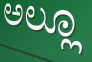
ಅಲ್ಲೂ